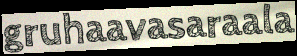
gruhaavasaraala